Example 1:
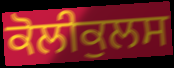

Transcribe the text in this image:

ਕੋਲੀਕੁਲਸ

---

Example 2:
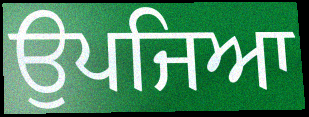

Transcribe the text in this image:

ਉਪਜਿਆ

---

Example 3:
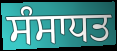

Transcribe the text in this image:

ਸੰਸਾਧਤ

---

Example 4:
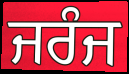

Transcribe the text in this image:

ਜਰੰਜ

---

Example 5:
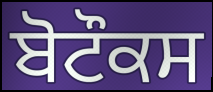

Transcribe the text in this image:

ਬੋਟੌਕਸ